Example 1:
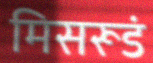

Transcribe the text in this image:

मिसरूडं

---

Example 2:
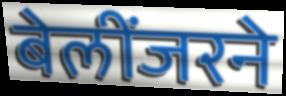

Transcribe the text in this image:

बेलींजरने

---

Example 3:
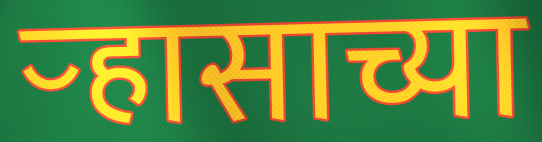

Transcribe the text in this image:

ऱ्हासाच्या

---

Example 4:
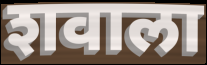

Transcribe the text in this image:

शवाला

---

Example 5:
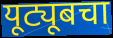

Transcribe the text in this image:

यूट्यूबचा